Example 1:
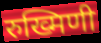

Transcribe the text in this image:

रुख्मिणी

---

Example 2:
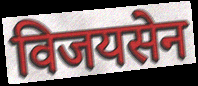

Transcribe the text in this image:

विजयसेन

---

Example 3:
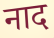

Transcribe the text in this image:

नाद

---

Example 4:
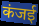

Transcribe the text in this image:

कंजई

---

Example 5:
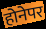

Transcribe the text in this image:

होनेपर